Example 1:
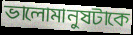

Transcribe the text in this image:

ভালোমানুষটাকে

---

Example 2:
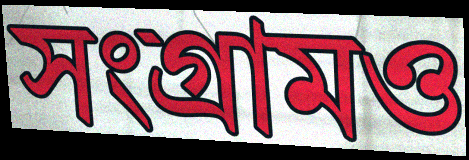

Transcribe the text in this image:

সংগ্রামও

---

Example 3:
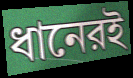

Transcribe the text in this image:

ধানেরই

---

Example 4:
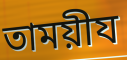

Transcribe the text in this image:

তাময়ীয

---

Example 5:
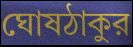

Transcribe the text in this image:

ঘোষঠাকুর